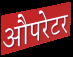
औपरेटर